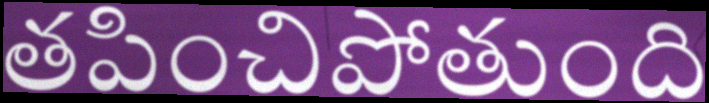
తపించిపోతుంది